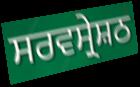
ਸਰਵਸ੍ਰੇਸ਼ਠ